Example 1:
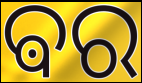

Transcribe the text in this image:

ଵର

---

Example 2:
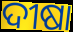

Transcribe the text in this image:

ଦୀଷା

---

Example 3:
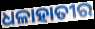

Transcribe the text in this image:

ଧଳାହାତୀର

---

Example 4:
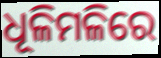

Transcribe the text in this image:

ଧୂଳିମଳିରେ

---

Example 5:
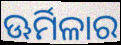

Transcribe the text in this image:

ଊର୍ମିଳାର